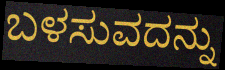
ಬಳಸುವದನ್ನು